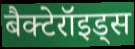
बैक्टेरॉइड्स